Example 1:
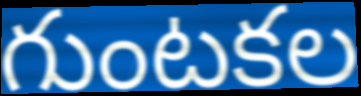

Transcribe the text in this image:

గుంటకల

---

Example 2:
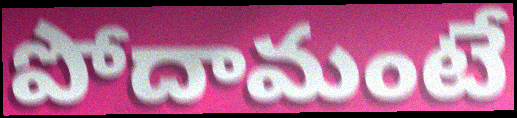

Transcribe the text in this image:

పోదామంటే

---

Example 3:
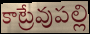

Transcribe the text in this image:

కాట్రేవుపల్లి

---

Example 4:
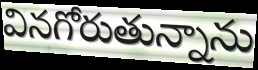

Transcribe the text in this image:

వినగోరుతున్నాను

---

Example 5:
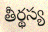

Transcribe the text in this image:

తీర్థస్య